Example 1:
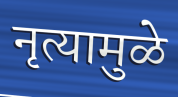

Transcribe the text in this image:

नृत्यामुळे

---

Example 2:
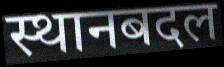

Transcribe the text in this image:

स्थानबदल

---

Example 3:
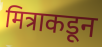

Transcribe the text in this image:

मित्राकडून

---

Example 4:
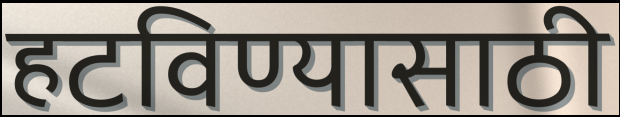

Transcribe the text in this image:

हटविण्यासाठी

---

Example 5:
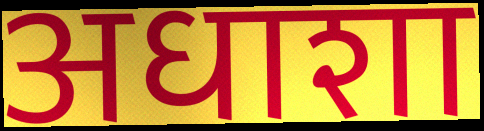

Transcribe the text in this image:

अधाशा